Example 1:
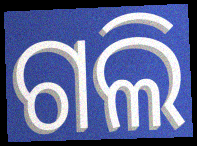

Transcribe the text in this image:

ଗଲି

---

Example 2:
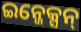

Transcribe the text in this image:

ଇନ୍ଜେକ୍ସନ୍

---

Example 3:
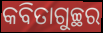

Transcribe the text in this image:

କବିତାଗୁଚ୍ଛର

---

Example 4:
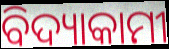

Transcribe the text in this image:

ବିଦ୍ୟାକାମୀ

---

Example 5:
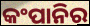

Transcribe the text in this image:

କଂପାନିର